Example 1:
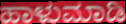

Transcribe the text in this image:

ಹಾಳುಮಾಡಿ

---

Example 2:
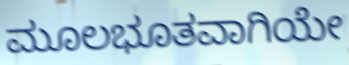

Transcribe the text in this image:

ಮೂಲಭೂತವಾಗಿಯೇ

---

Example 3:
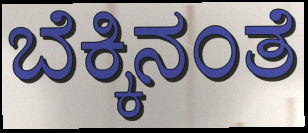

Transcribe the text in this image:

ಬೆಕ್ಕಿನಂತೆ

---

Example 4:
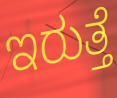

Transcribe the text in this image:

ಇರುತ್ತೆ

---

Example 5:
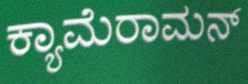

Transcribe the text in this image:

ಕ್ಯಾಮೆರಾಮನ್